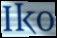
Iko